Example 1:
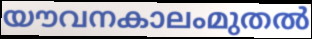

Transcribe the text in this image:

യൗവനകാലംമുതൽ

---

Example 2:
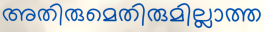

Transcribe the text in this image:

അതിരുമെതിരുമില്ലാത്ത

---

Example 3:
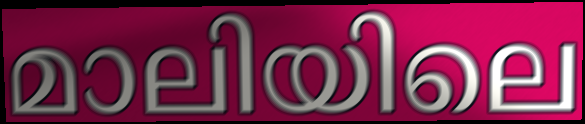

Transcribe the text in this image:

മാലിയിലെ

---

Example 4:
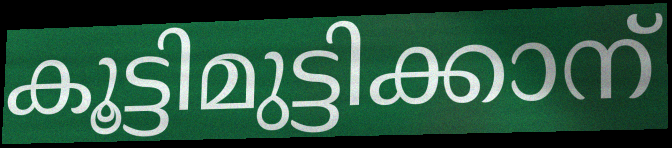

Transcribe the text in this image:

കൂട്ടിമുട്ടിക്കാന്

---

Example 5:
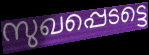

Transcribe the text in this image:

സുഖപ്പെടട്ടെ